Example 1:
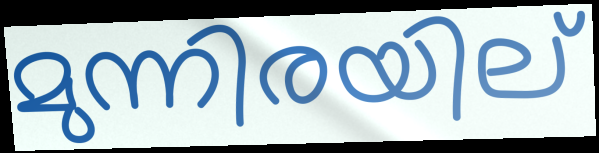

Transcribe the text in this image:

മുന്നിരയില്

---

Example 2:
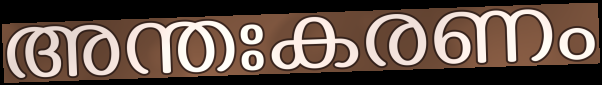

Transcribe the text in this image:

അന്തഃകരണം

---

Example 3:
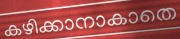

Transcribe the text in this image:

കഴിക്കാനാകാതെ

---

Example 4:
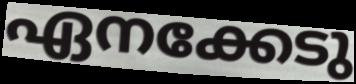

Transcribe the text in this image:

ഏനക്കേടു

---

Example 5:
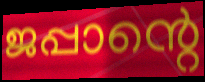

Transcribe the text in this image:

ജപ്പാന്റെ